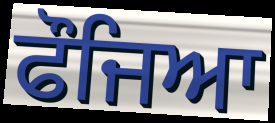
ਫੌਜਿਆ